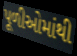
પૂળીઓમાંથી